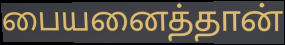
பையனைத்தான்